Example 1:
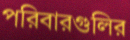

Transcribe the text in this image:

পরিবারগুলির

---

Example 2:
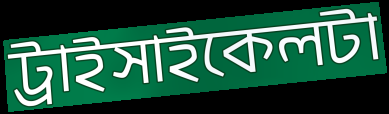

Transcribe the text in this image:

ট্রাইসাইকেলটা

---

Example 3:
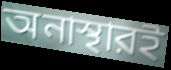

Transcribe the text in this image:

অনাস্থারই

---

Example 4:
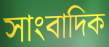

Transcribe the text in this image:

সাংবাদিক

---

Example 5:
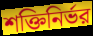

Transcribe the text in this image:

শক্তিনির্ভর